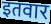
इतवार